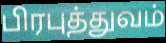
பிரபுத்துவம்